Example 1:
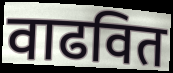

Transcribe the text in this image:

वाढवित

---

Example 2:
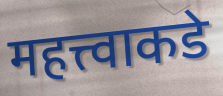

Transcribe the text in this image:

महत्त्वाकडे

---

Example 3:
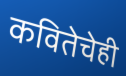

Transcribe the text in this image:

कवितेचेही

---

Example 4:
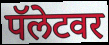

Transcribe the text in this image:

पॅलेटवर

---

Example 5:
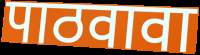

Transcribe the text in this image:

पाठवावा